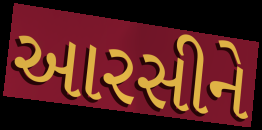
આરસીને